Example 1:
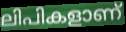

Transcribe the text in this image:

ലിപികളാണ്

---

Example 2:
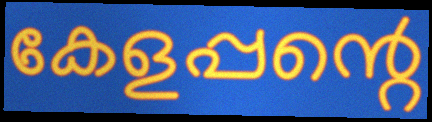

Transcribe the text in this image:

കേളപ്പന്റെ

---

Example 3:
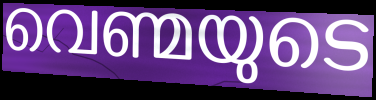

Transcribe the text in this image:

വെണ്മയുടെ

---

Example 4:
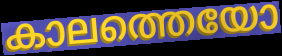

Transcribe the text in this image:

കാലത്തെയോ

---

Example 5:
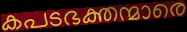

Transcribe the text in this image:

കപടഭക്തന്മാരെ